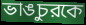
ভাঙচুরকে